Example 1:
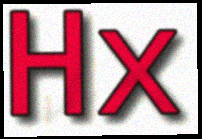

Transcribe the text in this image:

Hx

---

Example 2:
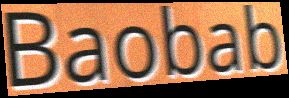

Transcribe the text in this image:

Baobab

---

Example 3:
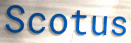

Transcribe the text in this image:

Scotus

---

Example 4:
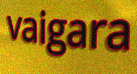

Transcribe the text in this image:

vaigara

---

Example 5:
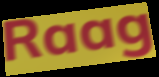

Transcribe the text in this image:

Raag